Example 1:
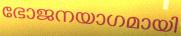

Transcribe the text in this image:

ഭോജനയാഗമായി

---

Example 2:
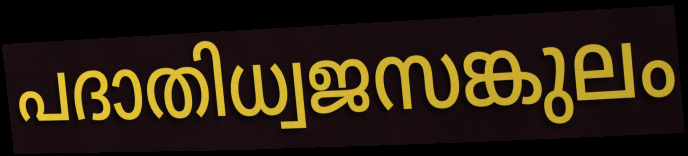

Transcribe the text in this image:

പദാതിധ്വജസങ്കുലം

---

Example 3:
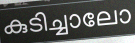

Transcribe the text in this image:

കുടിച്ചാലോ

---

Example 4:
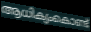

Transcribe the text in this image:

ആധിക്യംകൊണ്ട്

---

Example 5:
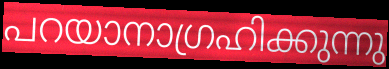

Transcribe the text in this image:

പറയാനാഗ്രഹിക്കുന്നു